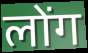
लोंग